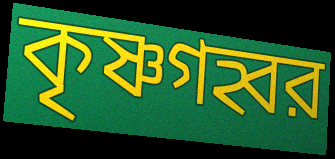
কৃষ্ণগহ্বর